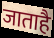
जाताहै